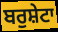
ਬਰੁਸ਼ੇਟਾ